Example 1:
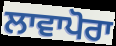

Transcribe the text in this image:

ਲਾਵਾਪੋਰਾ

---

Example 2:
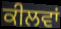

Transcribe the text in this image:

ਕੀਲਵਾਂ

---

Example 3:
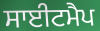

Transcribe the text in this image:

ਸਾਈਟਮੈਪ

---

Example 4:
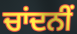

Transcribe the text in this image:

ਚਾਂਦਨੀਂ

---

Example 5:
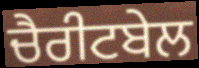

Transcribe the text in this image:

ਚੈਰੀਟਬੇਲ